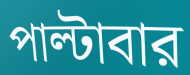
পাল্টাবার